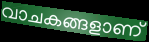
വാചകങ്ങളാണ്